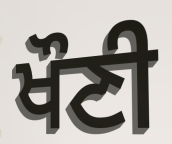
ਖੌਣੀ